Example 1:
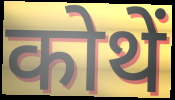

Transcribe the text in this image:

कोथें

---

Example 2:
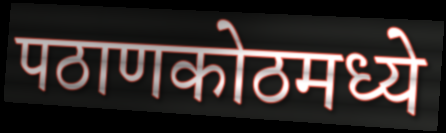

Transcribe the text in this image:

पठाणकोठमध्ये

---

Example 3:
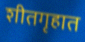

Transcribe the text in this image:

शीतगृहात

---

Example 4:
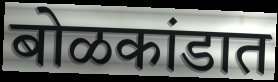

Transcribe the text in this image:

बोळकांडात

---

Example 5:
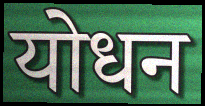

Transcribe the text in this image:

योधन